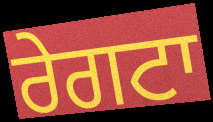
ਰੇਗਟਾ